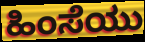
ಹಿಂಸೆಯು